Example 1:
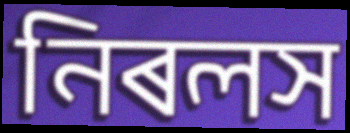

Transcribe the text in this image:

নিৰলস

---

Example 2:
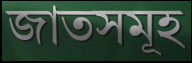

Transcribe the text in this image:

জাতসমূহ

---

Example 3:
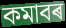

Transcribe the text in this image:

কমাবৰ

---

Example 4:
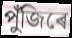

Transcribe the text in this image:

পুঁজিৰে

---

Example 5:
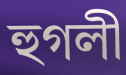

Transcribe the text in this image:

হুগলী